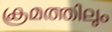
ക്രമത്തിലും